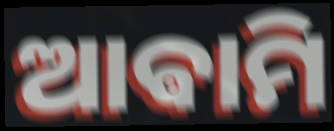
ଆଵାମି